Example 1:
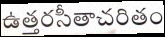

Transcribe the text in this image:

ఉత్తరసీతాచరితం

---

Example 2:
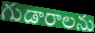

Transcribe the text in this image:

గుడారాలను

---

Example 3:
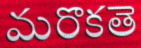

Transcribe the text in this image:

మరొకతె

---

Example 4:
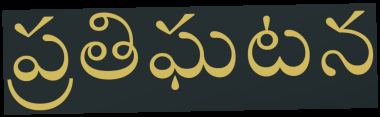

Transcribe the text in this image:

ప్రతిఘటన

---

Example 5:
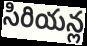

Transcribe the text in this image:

సిరియన్ల